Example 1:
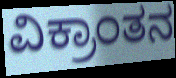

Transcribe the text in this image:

ವಿಕ್ರಾಂತನ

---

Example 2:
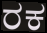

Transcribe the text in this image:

ರಕ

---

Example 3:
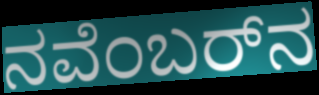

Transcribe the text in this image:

ನವೆಂಬರ್‌ನ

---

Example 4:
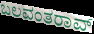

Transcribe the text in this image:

ಬಲವಂತರಾವ್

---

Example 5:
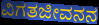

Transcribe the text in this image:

ವಿಗತಜೀವನನ